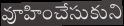
వూహించేసుకుని